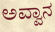
ಅವ್ವಾನ